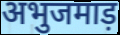
अभुजमाड़